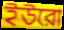
ইউরো